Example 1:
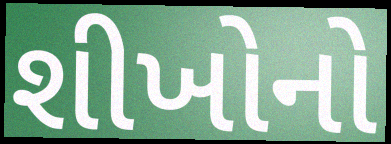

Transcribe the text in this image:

શીખોનો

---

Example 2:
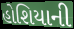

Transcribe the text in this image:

હોશિયાની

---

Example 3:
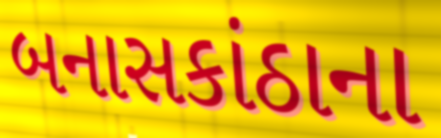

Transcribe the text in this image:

બનાસકાંઠાના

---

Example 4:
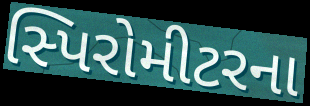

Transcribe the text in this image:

સ્પિરોમીટરના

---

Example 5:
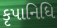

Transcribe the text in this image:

કૃપાનિધિ